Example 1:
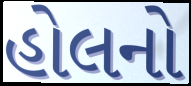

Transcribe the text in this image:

હોલનો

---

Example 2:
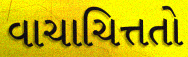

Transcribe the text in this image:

વાચાચિત્તતો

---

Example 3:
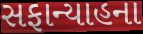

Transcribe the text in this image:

સફાન્યાહના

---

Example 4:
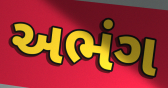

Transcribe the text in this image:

અભંગ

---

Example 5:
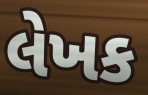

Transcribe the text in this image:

લેખક